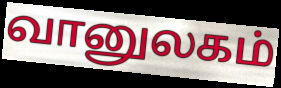
வானுலகம்